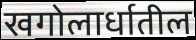
खगोलार्धातील